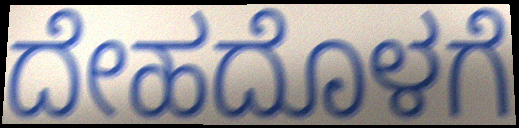
ದೇಹದೊಳಗೆ